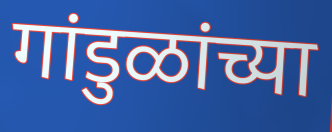
गांडुळांच्या